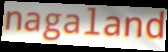
nagaland